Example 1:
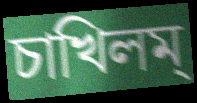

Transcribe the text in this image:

চাখিলম্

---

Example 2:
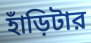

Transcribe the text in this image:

হাঁড়িটার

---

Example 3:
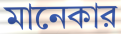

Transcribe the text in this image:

মানেকার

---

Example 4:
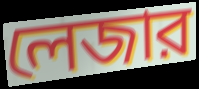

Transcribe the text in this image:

লেজার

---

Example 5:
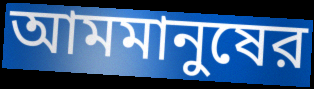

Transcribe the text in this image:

আমমানুষের